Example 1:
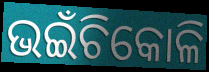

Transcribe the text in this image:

ଭଇଁଚିକୋଳି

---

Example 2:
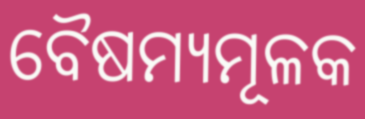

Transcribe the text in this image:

ବୈଷମ୍ୟମୂଳକ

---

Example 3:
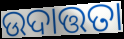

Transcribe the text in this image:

ଉଦାତ୍ତତା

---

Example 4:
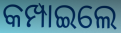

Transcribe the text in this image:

କମ୍ପାଇଲେ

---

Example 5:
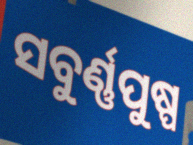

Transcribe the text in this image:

ସବୁର୍ଣ୍ଣପୁଷ୍ପ